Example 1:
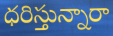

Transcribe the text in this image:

ధరిస్తున్నారా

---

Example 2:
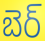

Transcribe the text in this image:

బెర్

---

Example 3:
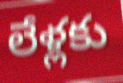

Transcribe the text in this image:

లేళ్లకు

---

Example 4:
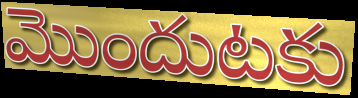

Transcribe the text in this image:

మొందుటకు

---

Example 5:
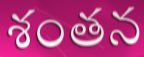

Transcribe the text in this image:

శంతన